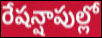
రేషన్షాపుల్లో